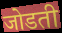
जोडती